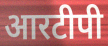
आरटीपी